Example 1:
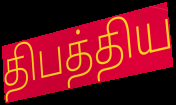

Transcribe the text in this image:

திபத்திய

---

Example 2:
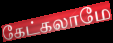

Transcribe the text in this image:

கேட்கலாமே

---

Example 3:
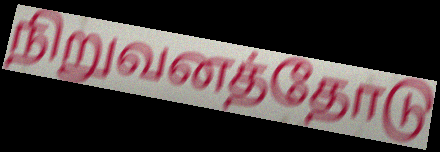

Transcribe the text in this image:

நிறுவனத்தோடு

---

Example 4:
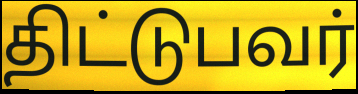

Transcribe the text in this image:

திட்டுபவர்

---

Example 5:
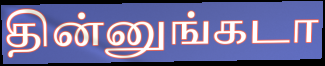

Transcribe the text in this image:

தின்னுங்கடா